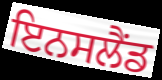
ਇਨਸਲੈਂਡ